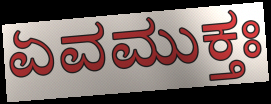
ಏವಮುಕ್ತಃ